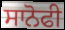
ਸਾਨੋਫੀ